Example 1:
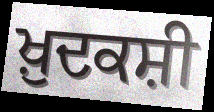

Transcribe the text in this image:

ਖ਼ੁਦਕਸ਼ੀ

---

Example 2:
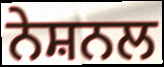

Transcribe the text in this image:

ਨੇਸ਼ਨਲ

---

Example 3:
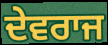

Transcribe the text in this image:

ਦੇਵਰਾਜ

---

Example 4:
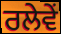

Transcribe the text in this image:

ਰਲੇਵੇਂ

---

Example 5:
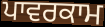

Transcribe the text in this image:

ਪਾਵਰਕਾਮ